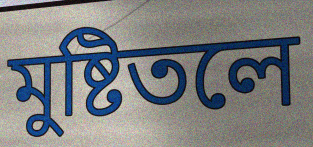
মুষ্টিতলে